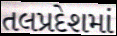
તલપ્રદેશમાં